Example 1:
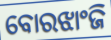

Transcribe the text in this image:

ବୋରଝାଂଜି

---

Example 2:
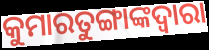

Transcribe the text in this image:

କୁମାରତୁଙ୍ଗାଙ୍କଦ୍ୱାରା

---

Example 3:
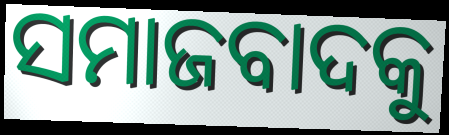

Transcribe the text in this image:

ସମାଜବାଦକୁ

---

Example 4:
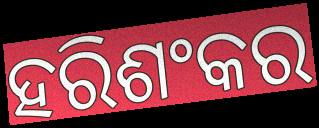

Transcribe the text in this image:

ହରିଶଂକର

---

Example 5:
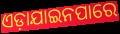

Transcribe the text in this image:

ଏଡ଼ାଯାଇନପାରେ